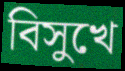
বিসুখে